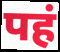
पहं